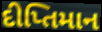
દીપ્તિમાન